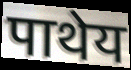
पाथेय